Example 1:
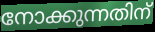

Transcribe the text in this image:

നോക്കുന്നതിന്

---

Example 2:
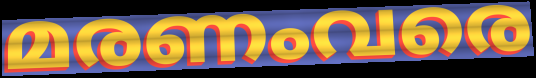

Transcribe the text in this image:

മരണംവരെ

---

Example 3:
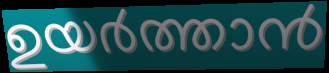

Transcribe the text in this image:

ഉയർത്താൻ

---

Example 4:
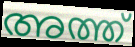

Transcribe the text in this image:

അത്ത്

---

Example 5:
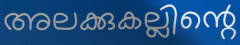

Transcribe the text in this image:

അലക്കുകല്ലിന്റെ